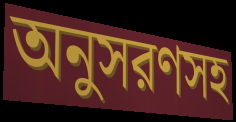
অনুসরণসহ